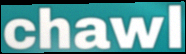
chawl